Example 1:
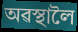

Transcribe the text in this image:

অৱস্থালৈ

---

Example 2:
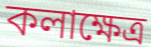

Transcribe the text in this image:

কলাক্ষেত্ৰ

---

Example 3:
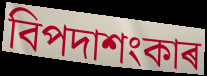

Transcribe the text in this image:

বিপদাশংকাৰ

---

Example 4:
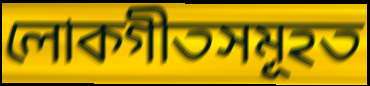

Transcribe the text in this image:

লোকগীতসমূহত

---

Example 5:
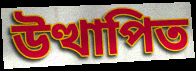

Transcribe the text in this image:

উত্থাপিত